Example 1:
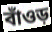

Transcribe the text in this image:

বাঁওড়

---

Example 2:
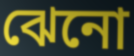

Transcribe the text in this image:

ঝেনো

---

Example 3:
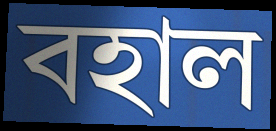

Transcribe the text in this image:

বহাল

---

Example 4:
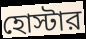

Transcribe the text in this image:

হোস্টার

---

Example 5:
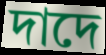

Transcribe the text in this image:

দাদে